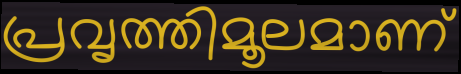
പ്രവൃത്തിമൂലമാണ്